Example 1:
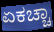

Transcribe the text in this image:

ಏಕಚ್ಚಾ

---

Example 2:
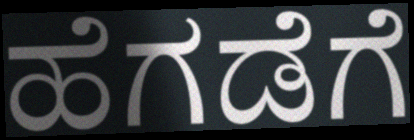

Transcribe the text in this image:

ಹೆಗಡೆಗೆ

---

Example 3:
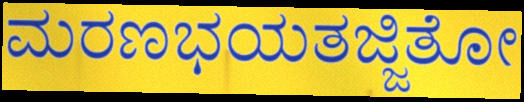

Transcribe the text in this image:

ಮರಣಭಯತಜ್ಜಿತೋ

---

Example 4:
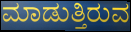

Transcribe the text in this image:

ಮಾಡುತ್ತಿರುವ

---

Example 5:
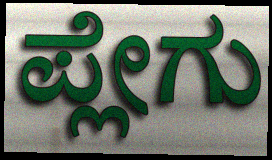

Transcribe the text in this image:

ಪ್ಲೇಗು